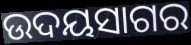
ଉଦୟସାଗର